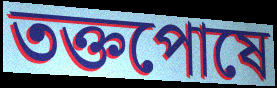
তক্তপোষে